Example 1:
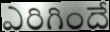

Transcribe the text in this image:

ఎరిగిందే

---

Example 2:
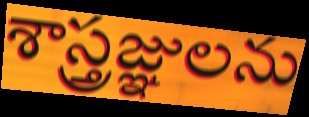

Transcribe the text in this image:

శాస్త్రజ్ఞులను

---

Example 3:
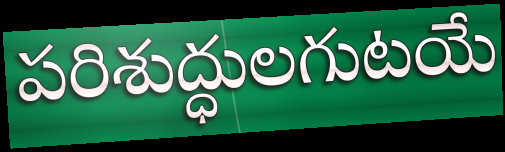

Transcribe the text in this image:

పరిశుద్ధులగుటయే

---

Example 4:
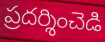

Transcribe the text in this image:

ప్రదర్శించెడి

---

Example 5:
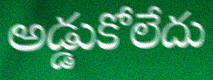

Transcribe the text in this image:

అడ్డుకోలేదు